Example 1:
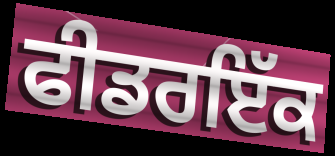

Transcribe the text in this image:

ਫੀਡਰਇੱਕ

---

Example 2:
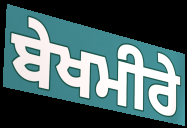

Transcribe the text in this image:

ਬੇਖਮੀਰੇ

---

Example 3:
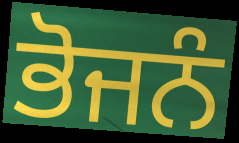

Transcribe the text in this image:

ਭੋਜਨੰ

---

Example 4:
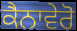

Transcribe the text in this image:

ਕੈਨਾਵੇਰੋ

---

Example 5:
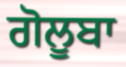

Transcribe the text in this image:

ਗੋਲੂਬਾ